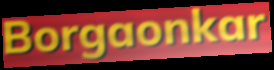
Borgaonkar